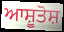
ਆਸ਼ੂਤੋਸ਼